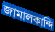
জামালকান্দি